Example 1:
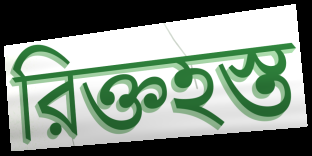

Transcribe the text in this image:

রিক্তহস্ত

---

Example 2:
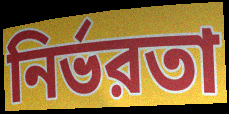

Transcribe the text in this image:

নির্ভরতা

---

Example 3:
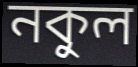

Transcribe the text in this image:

নকুল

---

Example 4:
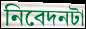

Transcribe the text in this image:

নিবেদনটা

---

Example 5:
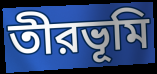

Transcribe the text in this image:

তীরভূমি